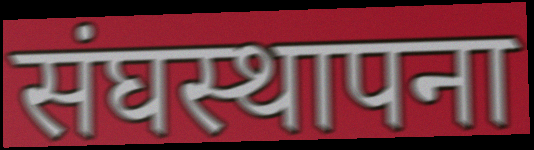
संघस्थापना